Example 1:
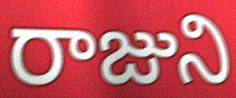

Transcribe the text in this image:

రాజుని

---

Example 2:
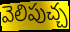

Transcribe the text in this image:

వెలిపుచ్చ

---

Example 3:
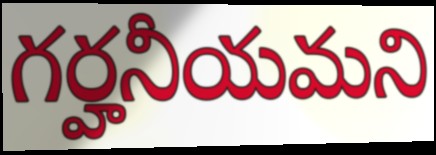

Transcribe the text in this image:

గర్హనీయమని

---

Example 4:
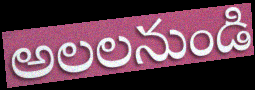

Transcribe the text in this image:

అలలనుండి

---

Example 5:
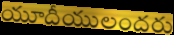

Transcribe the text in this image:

యూదీయులందరు